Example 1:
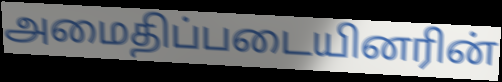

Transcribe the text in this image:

அமைதிப்படையினரின்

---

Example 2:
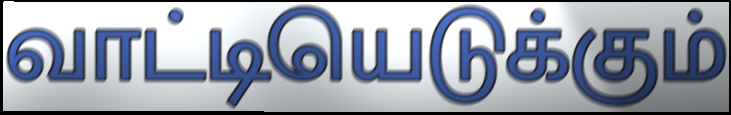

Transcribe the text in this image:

வாட்டியெடுக்கும்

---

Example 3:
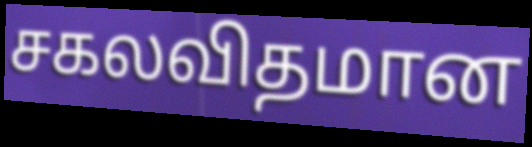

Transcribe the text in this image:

சகலவிதமான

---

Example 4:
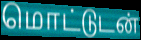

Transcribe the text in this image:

மொட்டுடன்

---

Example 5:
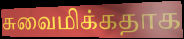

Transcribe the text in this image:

சுவைமிக்கதாக